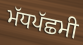
ਮੱਧਪੱਛਮੀ